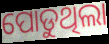
ପୋଡୁଥିଲା